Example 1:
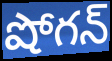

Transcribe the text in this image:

షోగన్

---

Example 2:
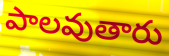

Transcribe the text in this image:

పాలవుతారు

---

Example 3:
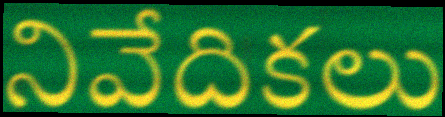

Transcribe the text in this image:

నివేదికలు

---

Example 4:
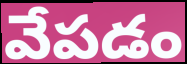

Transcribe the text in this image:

వేపడం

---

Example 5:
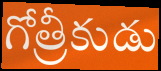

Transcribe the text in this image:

గోత్రీకుడు